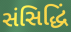
સંસિદ્ધિં